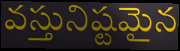
వస్తునిష్టమైన